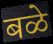
बळे